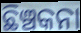
ଛିଞ୍ଚକନା